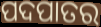
ପଦପାତର